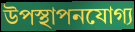
উপস্থাপনযোগ্য